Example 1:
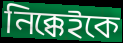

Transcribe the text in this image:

নিক্কেইকে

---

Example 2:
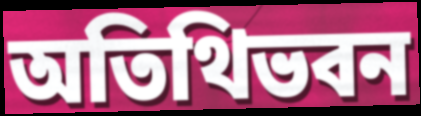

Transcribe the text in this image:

অতিথিভবন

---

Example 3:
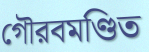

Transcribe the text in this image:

গৌরবমণ্ডিত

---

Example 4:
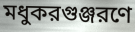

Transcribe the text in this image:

মধুকরগুঞ্জরণে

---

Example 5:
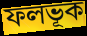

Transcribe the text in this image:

ফলভূক